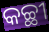
କଚ୍ଛୀ